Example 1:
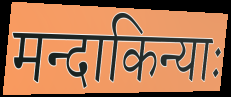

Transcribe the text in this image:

मन्दाकिन्याः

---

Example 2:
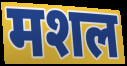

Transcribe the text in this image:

मशल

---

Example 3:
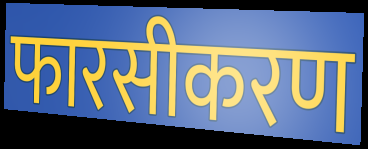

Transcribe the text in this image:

फारसीकरण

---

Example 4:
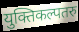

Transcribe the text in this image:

युक्तिकल्पतरु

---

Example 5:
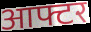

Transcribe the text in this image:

आफ्टर